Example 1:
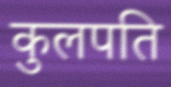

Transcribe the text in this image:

कुलपति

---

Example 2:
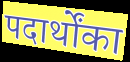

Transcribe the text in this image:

पदार्थोंका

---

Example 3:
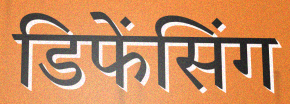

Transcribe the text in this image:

डिफेंसिंग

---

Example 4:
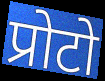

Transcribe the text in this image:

प्रोटो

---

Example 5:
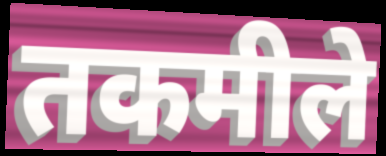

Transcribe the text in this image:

तकमीले